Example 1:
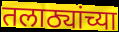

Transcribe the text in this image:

तलाठ्यांच्या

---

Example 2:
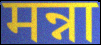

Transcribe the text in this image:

मन्ना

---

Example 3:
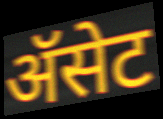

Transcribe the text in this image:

ॲसेट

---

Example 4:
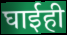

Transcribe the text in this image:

घाईही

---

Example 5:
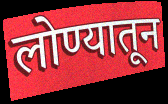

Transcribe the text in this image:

लोण्यातून